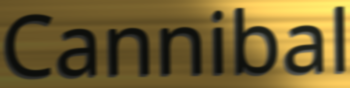
Cannibal